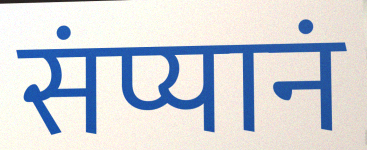
संप्यानं